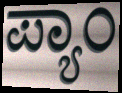
ಪ್ಯಾಂ